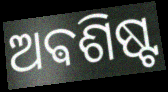
ଅଵଶିଷ୍ଟ